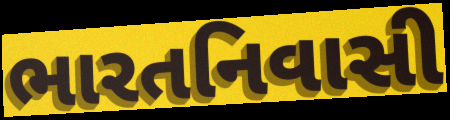
ભારતનિવાસી